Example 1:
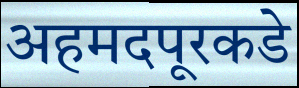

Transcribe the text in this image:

अहमदपूरकडे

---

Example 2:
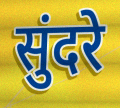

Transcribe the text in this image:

सुंदरे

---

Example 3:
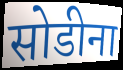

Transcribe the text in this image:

सोडीना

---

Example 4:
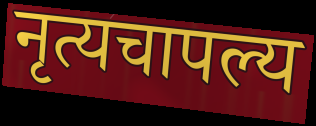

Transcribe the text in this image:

नृत्यचापल्य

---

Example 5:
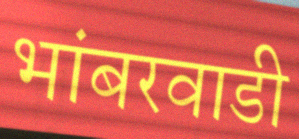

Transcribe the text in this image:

भांबरवाडी